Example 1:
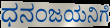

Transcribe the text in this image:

ಧನಂಜಯನಿಗೆ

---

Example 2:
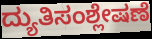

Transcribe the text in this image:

ದ್ಯುತಿಸಂಶ್ಲೇಷಣೆ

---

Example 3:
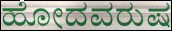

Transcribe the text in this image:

ಹೋದವರುಷ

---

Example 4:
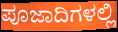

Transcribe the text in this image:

ಪೂಜಾದಿಗಳಲ್ಲಿ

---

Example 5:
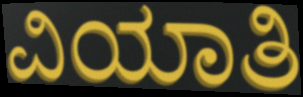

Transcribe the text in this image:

ವಿಯಾತಿ